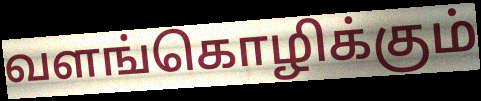
வளங்கொழிக்கும்